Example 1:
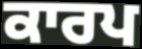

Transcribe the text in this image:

ਕਾਰਪ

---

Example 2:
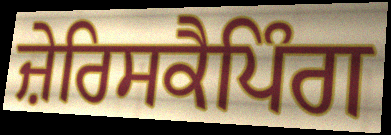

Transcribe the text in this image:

ਜ਼ੇਰਿਸਕੈਪਿੰਗ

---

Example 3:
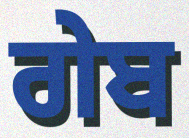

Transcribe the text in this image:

ਗੇਬ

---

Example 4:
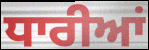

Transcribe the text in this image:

ਧਾਰੀਆਂ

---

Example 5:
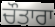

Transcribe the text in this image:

ਚੌਤਾਰਾ